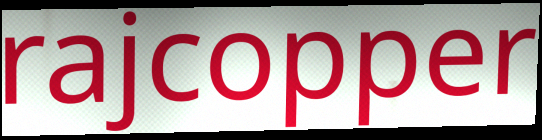
rajcopper